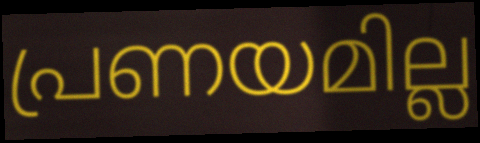
പ്രണയമില്ല